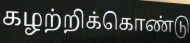
கழற்றிக்கொண்டு